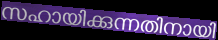
സഹായിക്കുന്നതിനായി